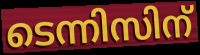
ടെന്നിസിന്